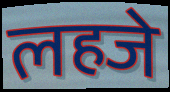
लहजे